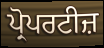
ਪ੍ਰੋਪਰਟੀਜ਼